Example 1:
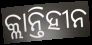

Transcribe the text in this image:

କ୍ଲାନ୍ତିହୀନ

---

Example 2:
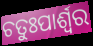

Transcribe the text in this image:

ଚତୁଃପାର୍ଶ୍ଵର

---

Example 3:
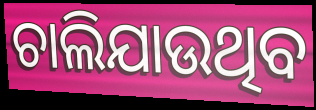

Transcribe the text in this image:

ଚାଲିଯାଉଥିବ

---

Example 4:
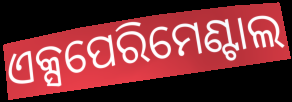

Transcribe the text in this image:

ଏକ୍ସପେରିମେଣ୍ଟାଲ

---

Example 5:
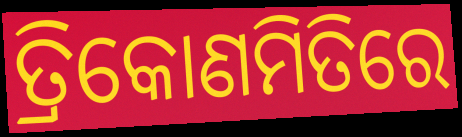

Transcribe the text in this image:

ତ୍ରିକୋଣମିତିରେ